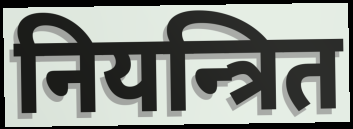
नियन्त्रित